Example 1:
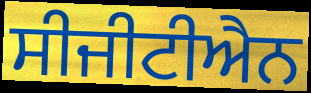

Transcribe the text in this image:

ਸੀਜੀਟੀਐਨ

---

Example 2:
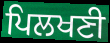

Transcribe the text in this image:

ਪਿਲਖਣੀ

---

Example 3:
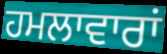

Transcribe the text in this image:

ਹਮਲਾਵਾਰਾਂ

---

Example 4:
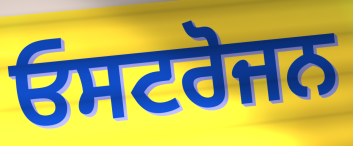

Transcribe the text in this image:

ਓਸਟਰੋਜਨ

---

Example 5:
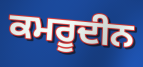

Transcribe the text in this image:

ਕਮਰੂਦੀਨ